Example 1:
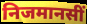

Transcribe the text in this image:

निजमानसीं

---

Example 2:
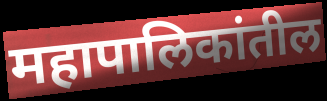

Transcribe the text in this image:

महापालिकांतील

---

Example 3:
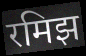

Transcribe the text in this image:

रमिझ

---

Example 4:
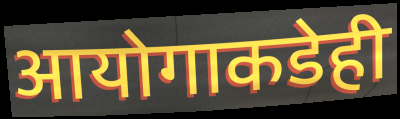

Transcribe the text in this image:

आयोगाकडेही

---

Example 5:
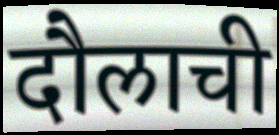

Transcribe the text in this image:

दौलाची